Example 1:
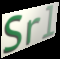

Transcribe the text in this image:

Srl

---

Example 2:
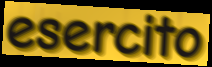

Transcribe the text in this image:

esercito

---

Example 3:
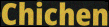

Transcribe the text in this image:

Chichen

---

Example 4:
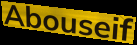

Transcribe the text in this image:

Abouseif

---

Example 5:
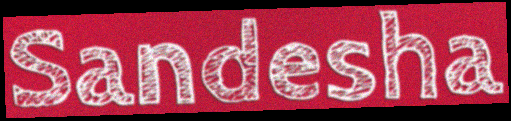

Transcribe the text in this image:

Sandesha